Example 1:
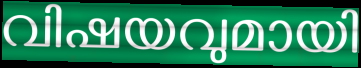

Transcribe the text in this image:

വിഷയവുമായി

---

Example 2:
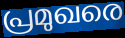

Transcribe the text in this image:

പ്രമുഖരെ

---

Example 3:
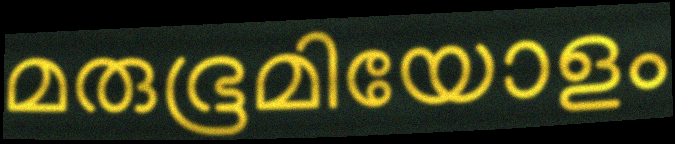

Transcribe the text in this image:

മരുഭൂമിയോളം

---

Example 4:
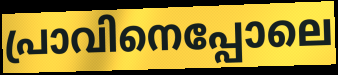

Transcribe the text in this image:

പ്രാവിനെപ്പോലെ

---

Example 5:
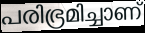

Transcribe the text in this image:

പരിഭ്രമിച്ചാണ്